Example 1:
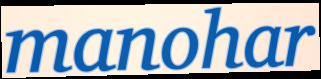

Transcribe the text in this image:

manohar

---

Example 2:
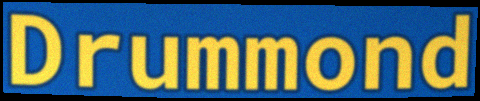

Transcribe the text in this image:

Drummond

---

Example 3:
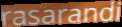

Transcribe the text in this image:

rasarandi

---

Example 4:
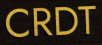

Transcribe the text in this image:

CRDT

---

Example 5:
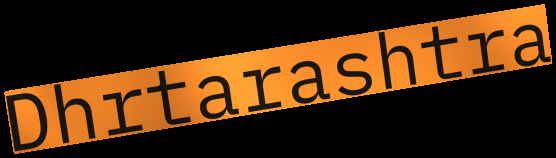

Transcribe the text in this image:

Dhrtarashtra